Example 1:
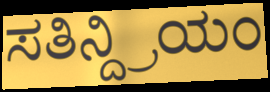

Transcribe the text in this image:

ಸತಿನ್ದ್ರಿಯಂ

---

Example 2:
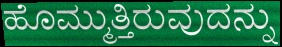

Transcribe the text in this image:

ಹೊಮ್ಮುತ್ತಿರುವುದನ್ನು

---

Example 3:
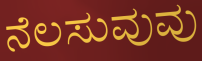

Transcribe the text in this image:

ನೆಲಸುವುವು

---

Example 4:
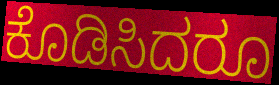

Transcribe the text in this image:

ಕೊಡಿಸಿದರೂ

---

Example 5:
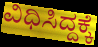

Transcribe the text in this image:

ವಿಧಿಸಿದ್ದಕ್ಕೆ